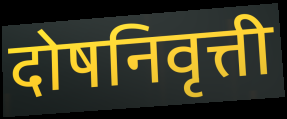
दोषनिवृत्ती